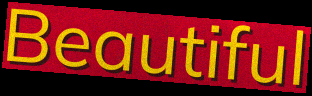
Beautiful